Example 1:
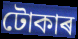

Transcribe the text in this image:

টোকাৰ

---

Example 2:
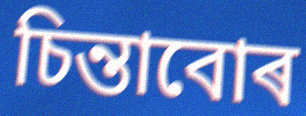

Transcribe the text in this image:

চিন্তাবোৰ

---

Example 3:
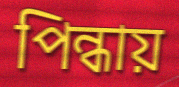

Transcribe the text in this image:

পিন্ধায়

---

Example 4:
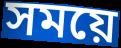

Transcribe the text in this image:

সময়ে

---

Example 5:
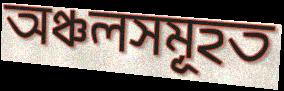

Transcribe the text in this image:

অঞ্চলসমূহত